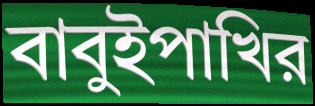
বাবুইপাখির